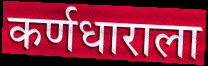
कर्णधाराला